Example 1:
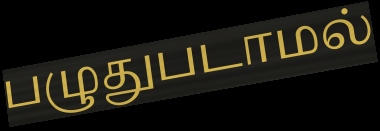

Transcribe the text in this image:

பழுதுபடாமல்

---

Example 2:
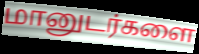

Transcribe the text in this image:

மானுடர்களை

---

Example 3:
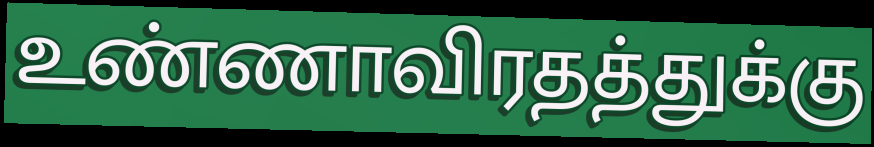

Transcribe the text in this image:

உண்ணாவிரதத்துக்கு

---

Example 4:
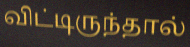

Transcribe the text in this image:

விட்டிருந்தால்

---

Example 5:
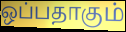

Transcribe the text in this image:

ஒப்பதாகும்